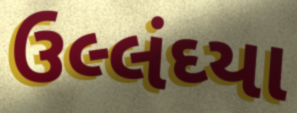
ઉલ્લંઘ્યા